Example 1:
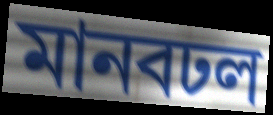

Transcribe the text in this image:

মানবঢল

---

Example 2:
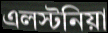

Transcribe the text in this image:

এলস্টনিয়া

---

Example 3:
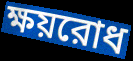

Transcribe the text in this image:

ক্ষয়রোধ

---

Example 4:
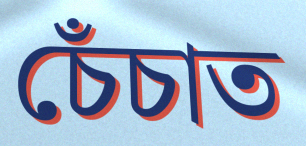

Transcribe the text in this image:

চেঁচাত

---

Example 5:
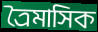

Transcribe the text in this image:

ত্রৈমাসিক